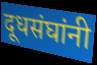
दूधसंघांनी